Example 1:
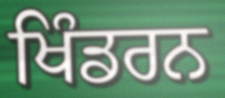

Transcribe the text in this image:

ਖਿੰਡਰਨ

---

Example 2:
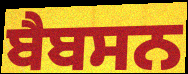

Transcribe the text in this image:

ਬੈਬਸਨ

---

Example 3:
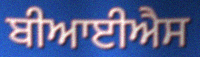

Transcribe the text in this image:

ਬੀਆਈਐਸ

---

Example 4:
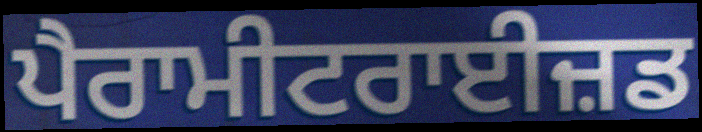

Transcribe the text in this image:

ਪੈਰਾਮੀਟਰਾਈਜ਼ਡ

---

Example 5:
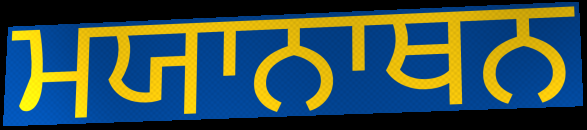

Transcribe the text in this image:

ਮਯਾਨਾਥਨ